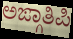
ಅಙ್ಗಾತಿಪಿ